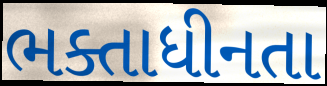
ભક્તાધીનતા